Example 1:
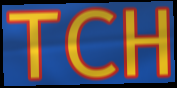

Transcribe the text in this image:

TCH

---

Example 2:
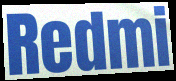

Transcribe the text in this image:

Redmi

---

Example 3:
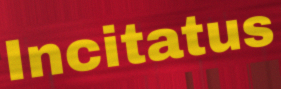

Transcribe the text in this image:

Incitatus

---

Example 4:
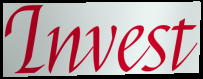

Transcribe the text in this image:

Invest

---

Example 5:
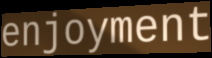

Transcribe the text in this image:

enjoyment